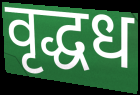
वृद्धध